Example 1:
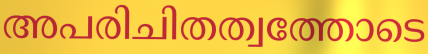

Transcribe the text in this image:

അപരിചിതത്വത്തോടെ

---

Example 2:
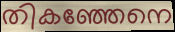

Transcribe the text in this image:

തികഞ്ഞേനെ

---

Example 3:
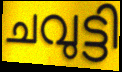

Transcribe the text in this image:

ചവുട്ടി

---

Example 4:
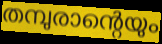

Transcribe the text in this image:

തമ്പുരാന്റെയും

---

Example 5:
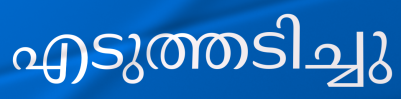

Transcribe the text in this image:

എടുത്തടിച്ചു